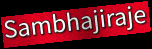
Sambhajiraje